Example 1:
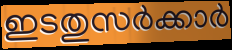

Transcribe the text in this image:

ഇടതുസർക്കാർ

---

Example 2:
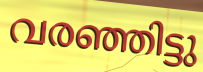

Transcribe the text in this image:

വരഞ്ഞിട്ടു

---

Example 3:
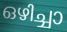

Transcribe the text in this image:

ഒഴിച്ചാ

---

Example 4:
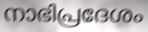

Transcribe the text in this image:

നാഭിപ്രദേശം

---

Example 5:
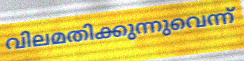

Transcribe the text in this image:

വിലമതിക്കുന്നുവെന്ന്